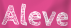
Aleve